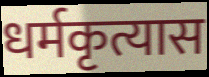
धर्मकृत्यास